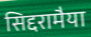
सिद्दरामैया